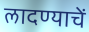
लादण्याचें